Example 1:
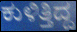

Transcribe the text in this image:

ಕುಳಿತ್ತಿದ್ದ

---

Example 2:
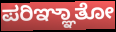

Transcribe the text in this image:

ಪರಿಞ್ಞಾತೋ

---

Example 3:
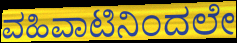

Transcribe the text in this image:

ವಹಿವಾಟಿನಿಂದಲೇ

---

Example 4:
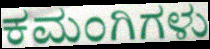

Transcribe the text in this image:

ಕಮಂಗಿಗಳು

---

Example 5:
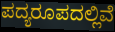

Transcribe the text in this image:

ಪದ್ಯರೂಪದಲ್ಲಿವೆ